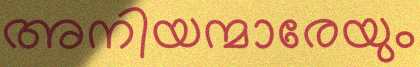
അനിയന്മാരേയും